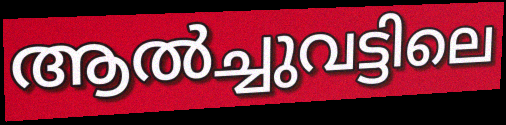
ആൽച്ചുവട്ടിലെ